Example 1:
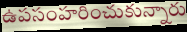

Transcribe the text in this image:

ఉపసంహరించుకున్నారు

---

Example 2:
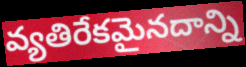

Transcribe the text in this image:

వ్యతిరేకమైనదాన్ని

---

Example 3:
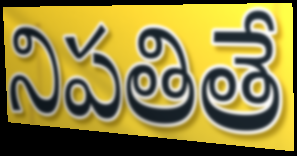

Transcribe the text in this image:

నిపతితే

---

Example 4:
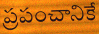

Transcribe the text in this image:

ప్రపంచానికే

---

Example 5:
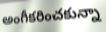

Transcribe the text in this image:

అంగీకరించకున్నా